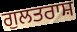
ਗੁਲਤਰਾਸ਼